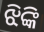
ଝିଙ୍କି